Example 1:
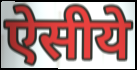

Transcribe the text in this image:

ऐसीये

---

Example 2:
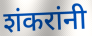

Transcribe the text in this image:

शंकरांनी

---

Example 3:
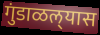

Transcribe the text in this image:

गुंडाळल्यास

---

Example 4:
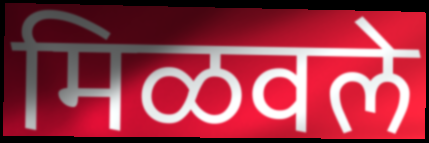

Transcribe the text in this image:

मिळवले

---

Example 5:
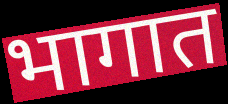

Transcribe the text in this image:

भागात